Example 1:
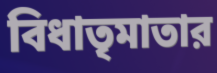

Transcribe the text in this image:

বিধাতৃমাতার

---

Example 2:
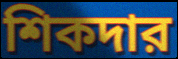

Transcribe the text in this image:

শিকদার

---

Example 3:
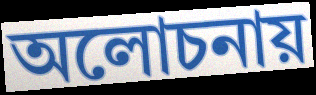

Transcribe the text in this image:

অলোচনায়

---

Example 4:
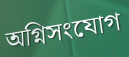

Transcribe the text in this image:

অগ্নিসংযোগ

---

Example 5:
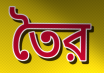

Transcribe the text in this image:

তৈর